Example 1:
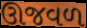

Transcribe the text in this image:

ઊજવળ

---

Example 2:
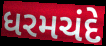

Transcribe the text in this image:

ધરમચંદે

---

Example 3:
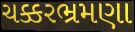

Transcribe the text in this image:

ચક્કરભ્રમણા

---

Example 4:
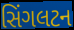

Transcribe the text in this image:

સિંગલટન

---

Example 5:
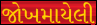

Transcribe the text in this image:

જોખમાયેલી